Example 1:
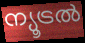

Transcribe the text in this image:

ന്യൂട്രൽ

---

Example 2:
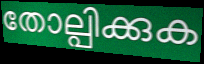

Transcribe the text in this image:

തോല്പിക്കുക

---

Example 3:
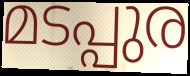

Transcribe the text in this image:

മടപ്പുര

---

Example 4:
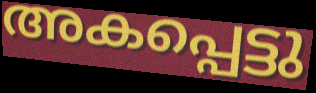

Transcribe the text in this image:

അകപ്പെട്ടു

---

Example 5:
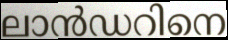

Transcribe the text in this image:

ലാൻഡറിനെ